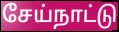
சேய்நாட்டு